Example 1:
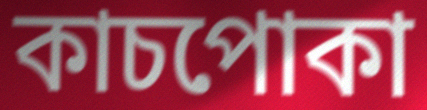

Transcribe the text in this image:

কাচপোকা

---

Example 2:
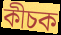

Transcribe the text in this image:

কীচক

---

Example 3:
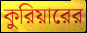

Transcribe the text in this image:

কুরিয়ারের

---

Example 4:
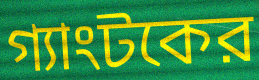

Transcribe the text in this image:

গ্যাংটকের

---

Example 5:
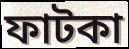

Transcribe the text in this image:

ফাটকা